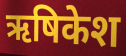
ऋषिकेश